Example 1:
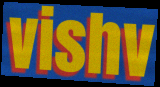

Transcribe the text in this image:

vishv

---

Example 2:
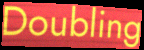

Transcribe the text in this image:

Doubling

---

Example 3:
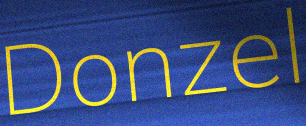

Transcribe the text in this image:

Donzel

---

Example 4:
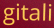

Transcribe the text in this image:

gitali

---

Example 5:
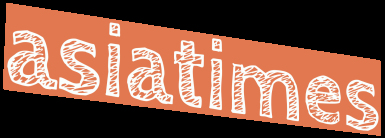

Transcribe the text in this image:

asiatimes